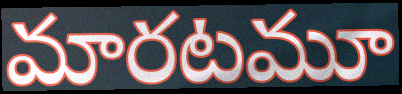
మారటమూ